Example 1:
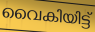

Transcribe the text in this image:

വൈകിയിട്ട്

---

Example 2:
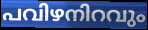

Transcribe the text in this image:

പവിഴനിറവും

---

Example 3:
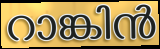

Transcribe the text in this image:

റാങ്കിൻ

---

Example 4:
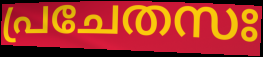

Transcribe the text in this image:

പ്രചേതസഃ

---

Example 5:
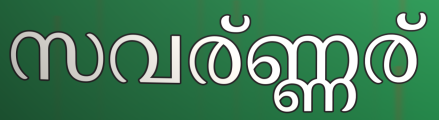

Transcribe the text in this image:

സവര്ണ്ണര്